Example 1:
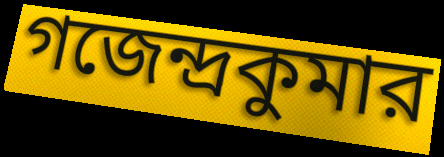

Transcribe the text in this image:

গজেন্দ্রকুমার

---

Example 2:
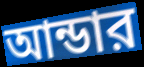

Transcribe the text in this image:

আন্ডার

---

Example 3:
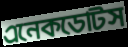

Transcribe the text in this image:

এনেকডোটস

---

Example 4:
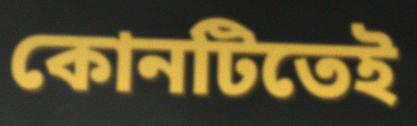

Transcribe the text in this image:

কোনটিতেই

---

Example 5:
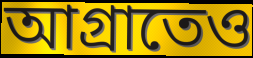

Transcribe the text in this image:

আগ্রাতেও